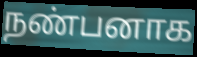
நண்பனாக